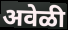
अवेळी